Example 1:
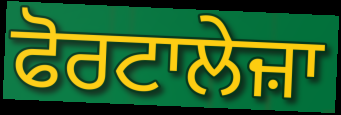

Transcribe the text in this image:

ਫੋਰਟਾਲੇਜ਼ਾ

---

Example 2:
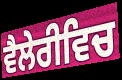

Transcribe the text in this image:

ਵੈਲੇਰੀਵਿਚ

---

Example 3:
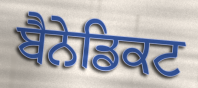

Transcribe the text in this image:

ਬੈਨੇਡਿਕਟ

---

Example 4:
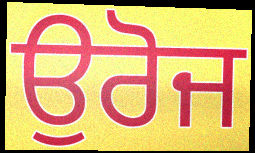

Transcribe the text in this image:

ਉਰੋਜ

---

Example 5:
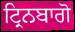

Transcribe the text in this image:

ਟ੍ਰਿਨਬਾਗੋ